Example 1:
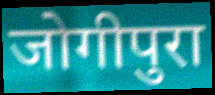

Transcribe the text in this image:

जोगीपुरा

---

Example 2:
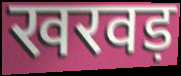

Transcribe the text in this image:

खरवड़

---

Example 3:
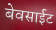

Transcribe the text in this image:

बेवसाईट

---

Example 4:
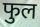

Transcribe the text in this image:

फुल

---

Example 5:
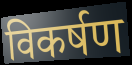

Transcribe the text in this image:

विकर्षण